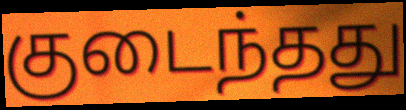
குடைந்தது